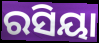
ରସିୟା